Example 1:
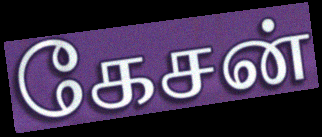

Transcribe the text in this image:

கேசன்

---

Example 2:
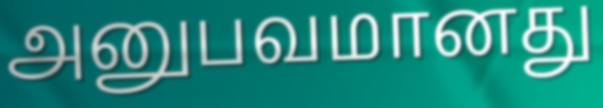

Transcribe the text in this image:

அனுபவமானது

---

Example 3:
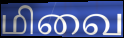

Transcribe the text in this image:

மிவை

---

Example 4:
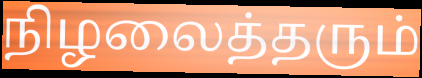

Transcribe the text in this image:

நிழலைத்தரும்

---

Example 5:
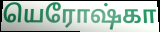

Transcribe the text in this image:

யெரோஷ்கா